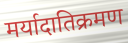
मर्यादातिक्रमण